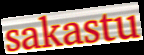
sakastu